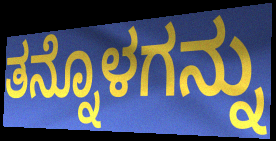
ತನ್ನೊಳಗನ್ನು